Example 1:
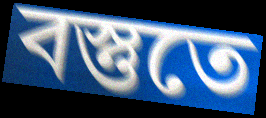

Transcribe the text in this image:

বস্তুতে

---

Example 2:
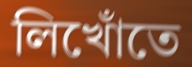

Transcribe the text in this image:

লিখোঁতে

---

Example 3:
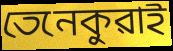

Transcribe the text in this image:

তেনেকুৱাই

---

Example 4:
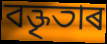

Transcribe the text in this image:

বক্তৃতাৰ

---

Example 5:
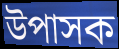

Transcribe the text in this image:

উপাসক